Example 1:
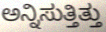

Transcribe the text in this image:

ಅನ್ನಿಸುತ್ತಿತ್ತು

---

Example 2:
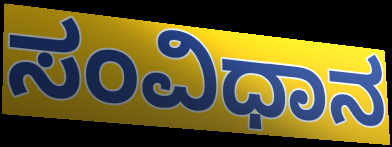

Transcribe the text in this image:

ಸಂವಿಧಾನ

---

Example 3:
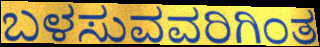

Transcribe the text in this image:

ಬಳಸುವವರಿಗಿಂತ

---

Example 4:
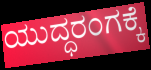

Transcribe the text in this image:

ಯುದ್ಧರಂಗಕ್ಕೆ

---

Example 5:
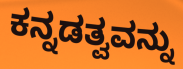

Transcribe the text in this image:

ಕನ್ನಡತ್ವವನ್ನು